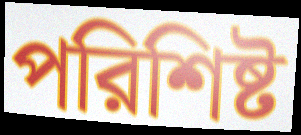
পরিশিষ্ট